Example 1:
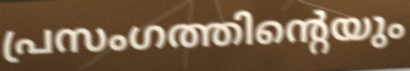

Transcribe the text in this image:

പ്രസംഗത്തിന്റെയും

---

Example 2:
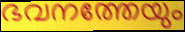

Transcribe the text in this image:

ഭവനത്തേയും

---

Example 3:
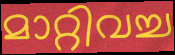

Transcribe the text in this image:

മാറ്റിവച്ച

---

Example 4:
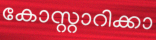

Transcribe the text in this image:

കോസ്റ്റാറിക്കാ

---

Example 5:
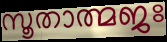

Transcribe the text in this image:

സൂതാത്മജഃ